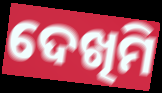
ଦେଖିମି